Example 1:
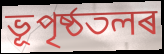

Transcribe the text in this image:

ভূপৃষ্ঠতলৰ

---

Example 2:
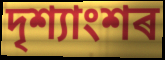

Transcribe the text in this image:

দৃশ্যাংশৰ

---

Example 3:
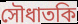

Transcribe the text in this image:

সৌধাতকি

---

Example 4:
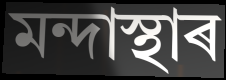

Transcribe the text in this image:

মন্দাস্থাৰ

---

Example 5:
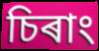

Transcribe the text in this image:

চিৰাং